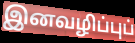
இனவழிப்புப்